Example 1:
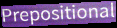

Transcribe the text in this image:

Prepositional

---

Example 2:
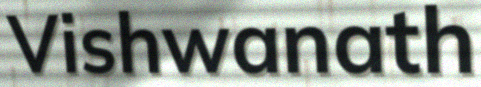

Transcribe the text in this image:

Vishwanath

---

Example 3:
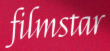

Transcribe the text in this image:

filmstar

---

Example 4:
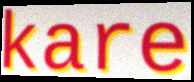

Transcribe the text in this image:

kare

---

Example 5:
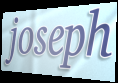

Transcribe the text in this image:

joseph